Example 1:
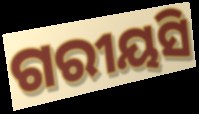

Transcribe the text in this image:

ଗରୀୟସି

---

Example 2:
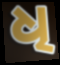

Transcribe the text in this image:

ଧି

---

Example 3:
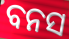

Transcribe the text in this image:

ବନସ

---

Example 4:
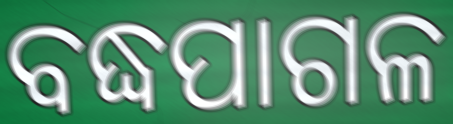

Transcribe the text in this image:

ବଦ୍ଧପାଗଳ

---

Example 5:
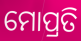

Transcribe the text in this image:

ମୋପ୍ରତି